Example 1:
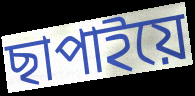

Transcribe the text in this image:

ছাপাইয়ে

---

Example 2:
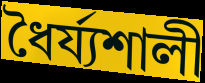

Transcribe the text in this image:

ধৈর্য্যশালী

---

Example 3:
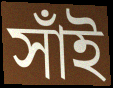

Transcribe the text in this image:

সাঁই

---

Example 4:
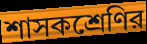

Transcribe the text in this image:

শাসকশ্রেণির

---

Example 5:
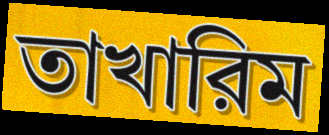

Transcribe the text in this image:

তাখারিম